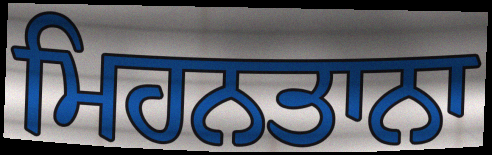
ਮਿਹਨਤਾਨਾ